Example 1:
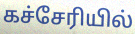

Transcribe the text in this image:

கச்சேரியில்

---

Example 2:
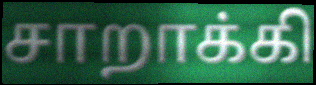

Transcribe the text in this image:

சாறாக்கி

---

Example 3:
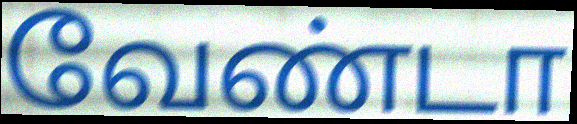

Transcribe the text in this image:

வேண்டா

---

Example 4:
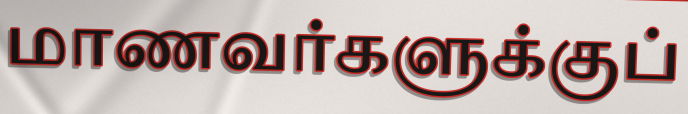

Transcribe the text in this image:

மாணவர்களுக்குப்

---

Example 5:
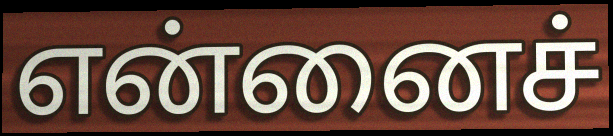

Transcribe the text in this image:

என்னைச்